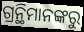
ଗ୍ରନ୍ଥିମାନଙ୍କରୁ